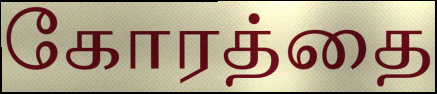
கோரத்தை